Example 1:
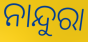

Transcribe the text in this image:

ନାନ୍ଦୁରା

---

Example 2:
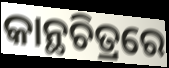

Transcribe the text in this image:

କାନ୍ଥଚିତ୍ରରେ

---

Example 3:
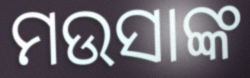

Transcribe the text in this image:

ମଉସାଙ୍କ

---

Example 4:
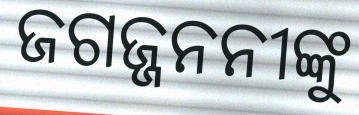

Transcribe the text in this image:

ଜଗଜ୍ଜନନୀଙ୍କୁ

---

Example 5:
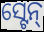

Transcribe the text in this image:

ସ୍ଟେନ୍